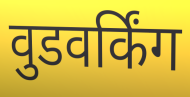
वुडवर्किंग